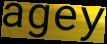
agey